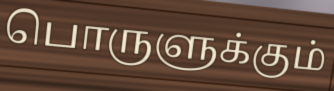
பொருளுக்கும்